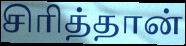
சிரித்தான்